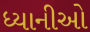
ધ્યાનીઓ